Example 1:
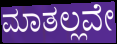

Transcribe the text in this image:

ಮಾತಲ್ಲವೇ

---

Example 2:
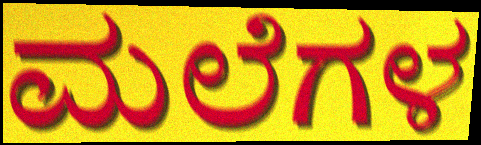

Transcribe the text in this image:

ಮಲೆಗಳ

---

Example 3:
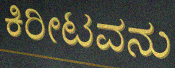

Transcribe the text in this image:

ಕಿರೀಟವನು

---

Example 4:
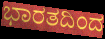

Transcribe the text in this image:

ಭಾರತದಿಂದ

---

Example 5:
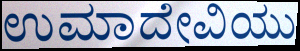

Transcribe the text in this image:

ಉಮಾದೇವಿಯು